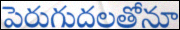
పెరుగుదలతోనూ